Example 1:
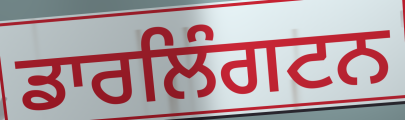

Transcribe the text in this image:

ਡਾਰਲਿੰਗਟਨ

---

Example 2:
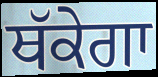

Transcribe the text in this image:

ਥੱਕੇਗਾ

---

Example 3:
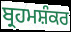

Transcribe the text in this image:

ਬ੍ਰਹਮਸ਼ੰਕਰ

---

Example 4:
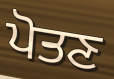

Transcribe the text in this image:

ਪੋਤਣ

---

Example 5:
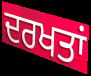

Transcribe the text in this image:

ਦਰਖਤਾਂ